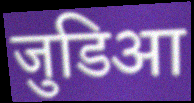
जुडिआ